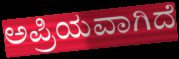
ಅಪ್ರಿಯವಾಗಿದೆ